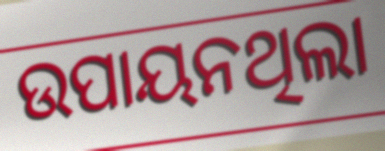
ଉପାୟନଥିଲା